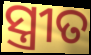
ସ୍ତ୍ରୀତ